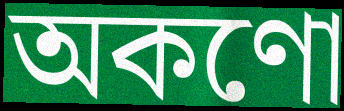
অকণো